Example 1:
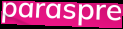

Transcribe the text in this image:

paraspre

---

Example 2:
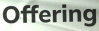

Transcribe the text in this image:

Offering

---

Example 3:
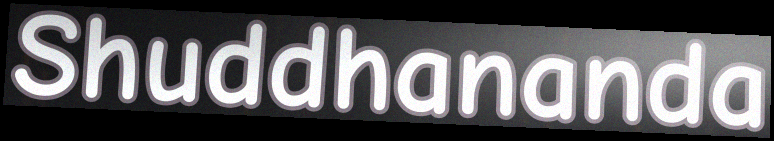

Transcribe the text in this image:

Shuddhananda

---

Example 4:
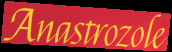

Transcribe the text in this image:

Anastrozole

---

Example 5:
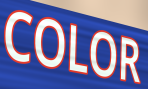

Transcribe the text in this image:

COLOR